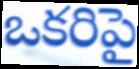
ఒకరిపై